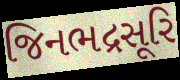
જિનભદ્રસૂરિ